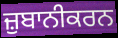
ਜ਼ੁਬਾਨੀਕਰਨ